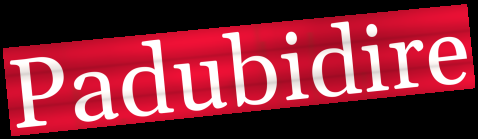
Padubidire